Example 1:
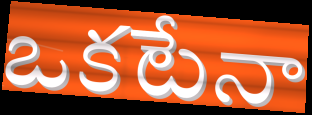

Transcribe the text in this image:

ఒకటేనా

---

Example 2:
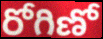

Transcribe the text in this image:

రోగిణో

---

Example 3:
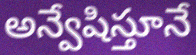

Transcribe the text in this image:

అన్వేషిస్తూనే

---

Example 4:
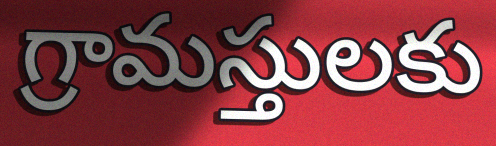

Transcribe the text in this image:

గ్రామస్తులకు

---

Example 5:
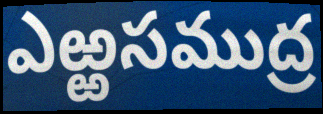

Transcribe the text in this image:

ఎఱ్ఱసముద్ర